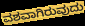
ವಶವಾಗಿರುವುದು